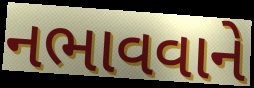
નભાવવાને